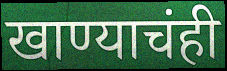
खाण्याचंही